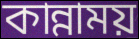
কান্নাময়